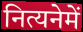
नित्यनेमें